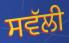
ਸਵੱਲੀ